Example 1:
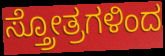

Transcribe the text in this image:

ಸ್ತ್ರೋತ್ರಗಳಿಂದ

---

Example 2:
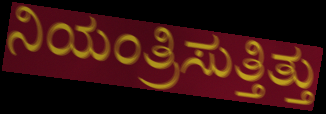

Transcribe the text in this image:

ನಿಯಂತ್ರಿಸುತ್ತಿತ್ತು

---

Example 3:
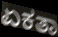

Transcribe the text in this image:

ಏಕತಾ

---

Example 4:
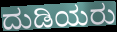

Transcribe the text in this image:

ದುಡಿಯರು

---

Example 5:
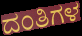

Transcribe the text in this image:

ದಂತಿಗಳ